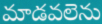
మాడవలెను